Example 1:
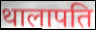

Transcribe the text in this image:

थालापति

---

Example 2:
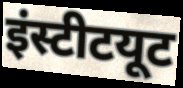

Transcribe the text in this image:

इंस्टीटयूट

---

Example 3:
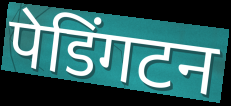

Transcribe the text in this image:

पेडिंगटन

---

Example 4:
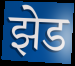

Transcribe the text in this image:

झेड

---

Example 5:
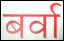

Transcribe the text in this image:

बर्वा